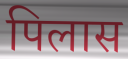
पिलास